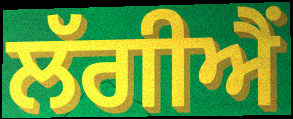
ਲੱਗੀਐਂ